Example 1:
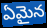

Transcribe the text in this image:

ఏమైన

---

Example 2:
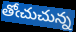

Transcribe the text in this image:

తోఁచుచున్న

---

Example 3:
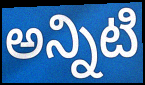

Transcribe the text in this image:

అన్నిటి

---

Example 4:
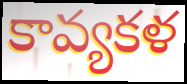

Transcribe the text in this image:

కావ్యకళ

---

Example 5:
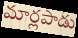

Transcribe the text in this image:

మార్లపాడు